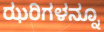
ಝರಿಗಳನ್ನೂ